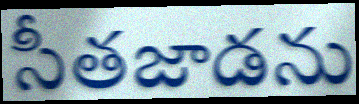
సీతజాడను